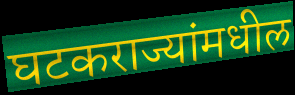
घटकराज्यांमधील